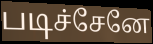
படிச்சேனே